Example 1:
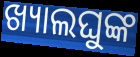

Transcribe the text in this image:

ଖ୍ୟାଲଘୁଙ୍କ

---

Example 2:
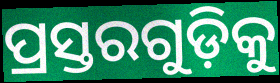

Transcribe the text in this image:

ପ୍ରସ୍ତରଗୁଡ଼ିକୁ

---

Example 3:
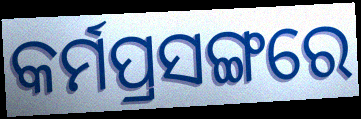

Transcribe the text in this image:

କର୍ମପ୍ରସଙ୍ଗରେ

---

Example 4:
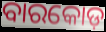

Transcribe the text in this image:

ବାରକୋଡ଼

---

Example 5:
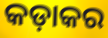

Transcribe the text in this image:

କଡ଼ାକର